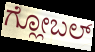
ಗ್ಲೋಬಲ್